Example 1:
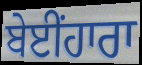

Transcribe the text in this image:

ਬੇਈਂਹਾਰਾ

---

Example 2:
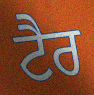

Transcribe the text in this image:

ਟੈਰ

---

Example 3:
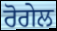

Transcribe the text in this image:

ਰੋਗੇਲ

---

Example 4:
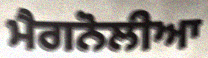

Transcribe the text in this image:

ਮੈਗਨੋਲੀਆ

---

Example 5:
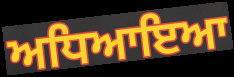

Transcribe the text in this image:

ਅਧਿਆਇਆ